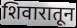
शिवारातून